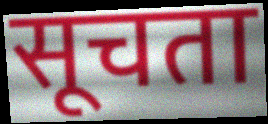
सूचता